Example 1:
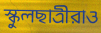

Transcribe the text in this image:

স্কুলছাত্রীরাও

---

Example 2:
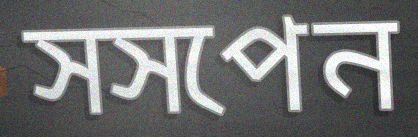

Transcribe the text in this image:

সসপেন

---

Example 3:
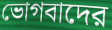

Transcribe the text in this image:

ভোগবাদের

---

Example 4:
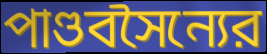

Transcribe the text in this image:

পাণ্ডবসৈন্যের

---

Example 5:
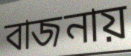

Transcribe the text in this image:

বাজনায়